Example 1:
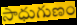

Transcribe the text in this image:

సాధుగుణం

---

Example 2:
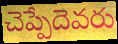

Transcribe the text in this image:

చెప్పేదెవరు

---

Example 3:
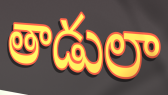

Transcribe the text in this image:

తాడులా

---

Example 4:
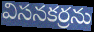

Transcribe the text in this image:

విసనకర్రను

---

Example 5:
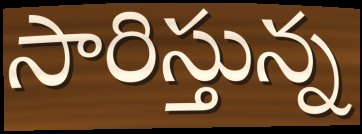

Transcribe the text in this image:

సారిస్తున్న